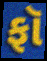
ફૉ